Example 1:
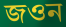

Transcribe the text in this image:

জওন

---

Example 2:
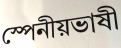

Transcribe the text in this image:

স্পেনীয়ভাষী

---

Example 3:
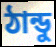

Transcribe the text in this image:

ঠান্ডু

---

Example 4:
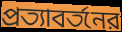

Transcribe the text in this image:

প্রত্যাবর্তনের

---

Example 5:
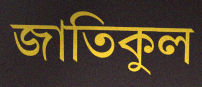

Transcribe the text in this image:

জাতিকুল